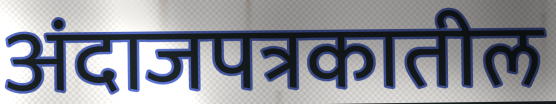
अंदाजपत्रकातील